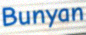
Bunyan